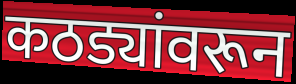
कठड्यांवरून